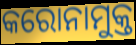
କରୋନାମୁକ୍ତ